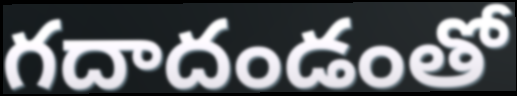
గదాదండంతో